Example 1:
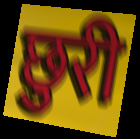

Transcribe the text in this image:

छुरी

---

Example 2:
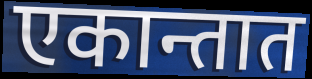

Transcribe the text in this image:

एकान्तात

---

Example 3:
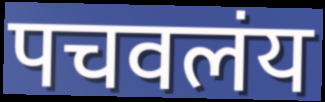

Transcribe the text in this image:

पचवलंय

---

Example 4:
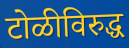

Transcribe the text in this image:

टोळीविरुद्ध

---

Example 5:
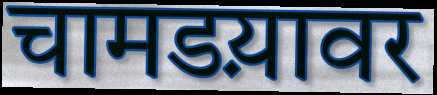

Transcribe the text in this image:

चामडय़ावर